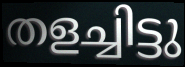
തളച്ചിട്ടു